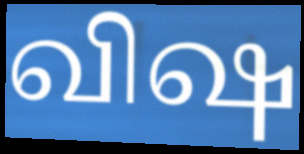
விஷ